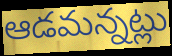
ఆడమన్నట్లు